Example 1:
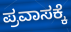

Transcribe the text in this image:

ಪ್ರವಾಸಕ್ಕೆ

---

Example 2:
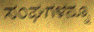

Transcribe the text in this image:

ಸಂಘಗಳನ್ನೂ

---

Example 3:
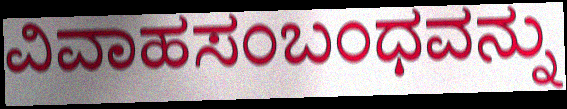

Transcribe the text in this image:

ವಿವಾಹಸಂಬಂಧವನ್ನು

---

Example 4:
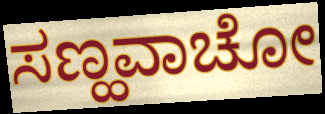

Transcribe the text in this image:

ಸಣ್ಹವಾಚೋ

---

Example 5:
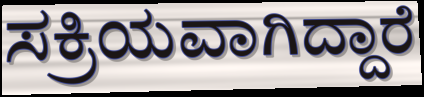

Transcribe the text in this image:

ಸಕ್ರಿಯವಾಗಿದ್ದಾರೆ